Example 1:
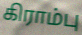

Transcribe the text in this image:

கிராம்பு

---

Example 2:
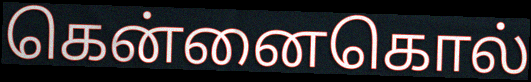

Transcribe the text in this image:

கென்னைகொல்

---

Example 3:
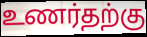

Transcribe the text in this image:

உணர்தற்கு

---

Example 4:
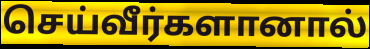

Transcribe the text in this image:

செய்வீர்களானால்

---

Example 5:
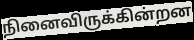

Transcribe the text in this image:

நினைவிருக்கின்றன